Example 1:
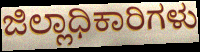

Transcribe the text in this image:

ಜಿಲ್ಲಾಧಿಕಾರಿಗಳು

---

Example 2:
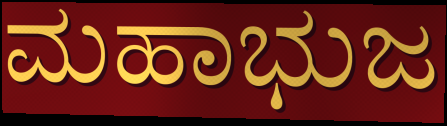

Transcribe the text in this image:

ಮಹಾಭುಜ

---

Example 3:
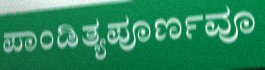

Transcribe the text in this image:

ಪಾಂಡಿತ್ಯಪೂರ್ಣವೂ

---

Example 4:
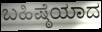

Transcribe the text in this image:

ಬಹಿಷ್ಠೆಯಾದ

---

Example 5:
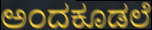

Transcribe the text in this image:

ಅಂದಕೂಡಲೆ